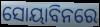
ସୋୟାବିନରେ